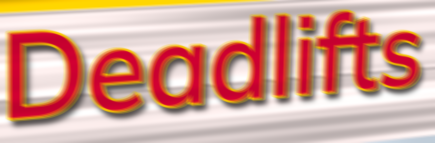
Deadlifts